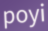
poyi